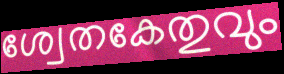
ശ്വേതകേതുവും